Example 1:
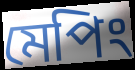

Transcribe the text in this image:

মেপিং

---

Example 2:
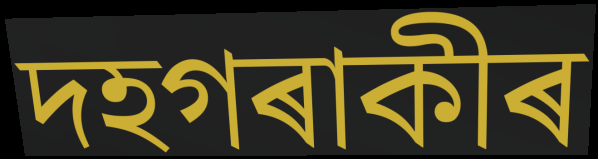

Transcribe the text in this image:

দহগৰাকীৰ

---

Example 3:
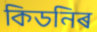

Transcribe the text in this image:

কিডনিৰ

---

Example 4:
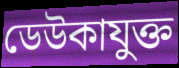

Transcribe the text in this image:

ডেউকাযুক্ত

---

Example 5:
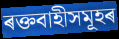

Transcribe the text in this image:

ৰক্তবাহীসমূহৰ